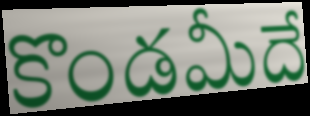
కొండమీదే